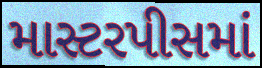
માસ્ટરપીસમાં